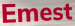
Emest